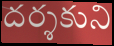
దర్శకుని